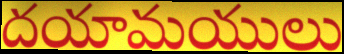
దయామయులు